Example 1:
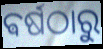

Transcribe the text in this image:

ଵର୍ଷଠାରୁ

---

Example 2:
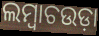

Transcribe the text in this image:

ଲମ୍ବାଚଉଡ଼ା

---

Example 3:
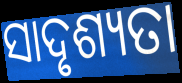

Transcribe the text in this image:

ସାଦୃଶ୍ୟତା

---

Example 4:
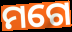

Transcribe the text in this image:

ମଗେ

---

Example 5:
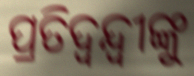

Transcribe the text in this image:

ପ୍ରତିଦ୍ବନ୍ଦ୍ବୀଙ୍କୁ